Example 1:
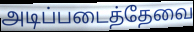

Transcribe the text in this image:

அடிப்படைத்தேவை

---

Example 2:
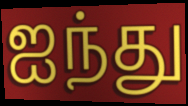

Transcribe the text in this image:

ஐந்து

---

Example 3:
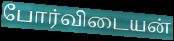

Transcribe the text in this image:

போர்விடையன்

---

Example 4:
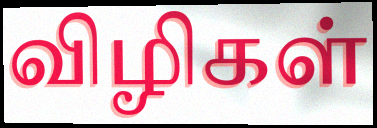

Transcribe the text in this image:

விழிகள்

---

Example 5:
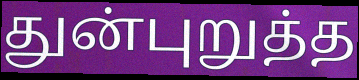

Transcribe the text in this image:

துன்புறுத்த